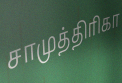
சாமுத்திரிகா